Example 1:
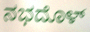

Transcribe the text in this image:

ನಭದೊಳ್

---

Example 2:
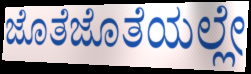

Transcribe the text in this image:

ಜೊತೆಜೊತೆಯಲ್ಲೇ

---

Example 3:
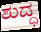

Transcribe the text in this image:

ಶುದ್ಧ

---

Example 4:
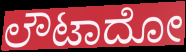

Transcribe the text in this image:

ಲೌಟಾದೋ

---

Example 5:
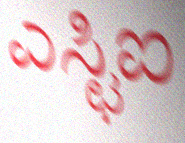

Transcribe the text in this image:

ಎಸ್ಟಿಐ